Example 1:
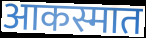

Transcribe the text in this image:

आकस्मात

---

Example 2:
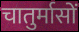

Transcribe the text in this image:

चातुर्मासों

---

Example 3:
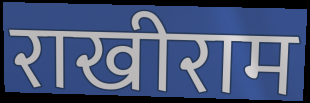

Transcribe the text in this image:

राखीराम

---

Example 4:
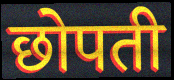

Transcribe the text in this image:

छोपती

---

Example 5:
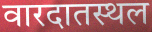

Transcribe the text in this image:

वारदातस्थल